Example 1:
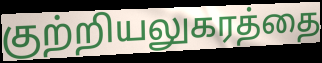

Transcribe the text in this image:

குற்றியலுகரத்தை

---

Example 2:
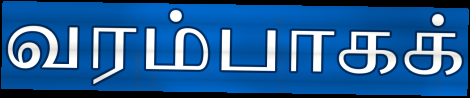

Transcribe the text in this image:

வரம்பாகக்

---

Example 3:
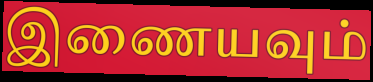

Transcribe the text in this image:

இணையவும்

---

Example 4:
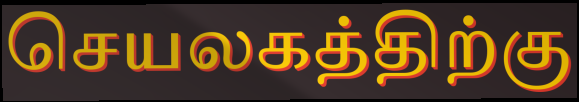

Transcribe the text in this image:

செயலகத்திற்கு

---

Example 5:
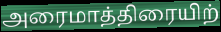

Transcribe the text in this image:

அரைமாத்திரையிற்